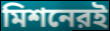
মিশনেরই